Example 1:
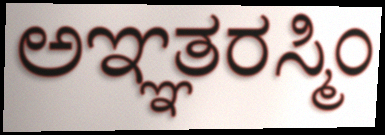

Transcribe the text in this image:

ಅಞ್ಞತರಸ್ಮಿಂ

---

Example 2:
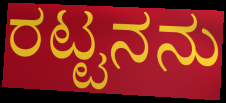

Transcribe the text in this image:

ರಟ್ಟನನು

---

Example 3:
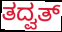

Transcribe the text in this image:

ತದ್ವತ್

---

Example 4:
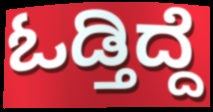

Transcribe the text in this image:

ಓಡ್ತಿದ್ದೆ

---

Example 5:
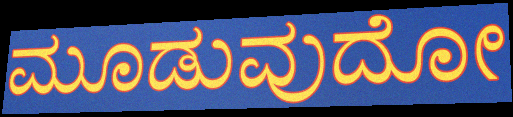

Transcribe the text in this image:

ಮೂಡುವುದೋ